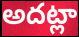
అదట్లా